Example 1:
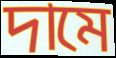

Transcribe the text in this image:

দামে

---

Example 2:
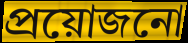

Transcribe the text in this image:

প্ৰয়োজনো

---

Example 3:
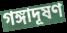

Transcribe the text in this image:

গঙ্গাদূষণ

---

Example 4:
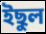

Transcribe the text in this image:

ইছুল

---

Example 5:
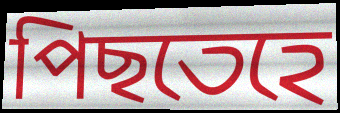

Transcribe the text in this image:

পিছতেহে